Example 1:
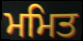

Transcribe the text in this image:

ਮਮਿਤ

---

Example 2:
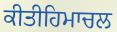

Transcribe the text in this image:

ਕੀਤੀਹਿਮਾਚਲ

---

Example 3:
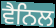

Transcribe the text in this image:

ਵੈਨਿਲ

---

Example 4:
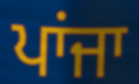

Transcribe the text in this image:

ਪਾਂਜਾ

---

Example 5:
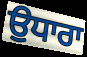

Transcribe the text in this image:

ਉਧਾਰਾ